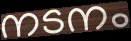
നടനം